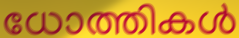
ധോത്തികൾ